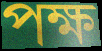
পক্ষ